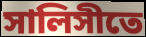
সালিসীতে